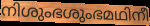
നിശുംഭശുംഭമഥിനീ